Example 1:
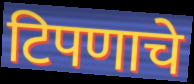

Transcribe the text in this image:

टिपणाचे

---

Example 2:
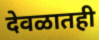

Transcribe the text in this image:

देवळातही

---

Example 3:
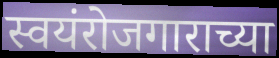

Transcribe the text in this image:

स्वयंरोजगाराच्या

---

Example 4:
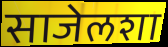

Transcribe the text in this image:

साजेलशा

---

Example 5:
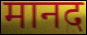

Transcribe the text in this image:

मानद